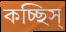
কচ্ছিস্